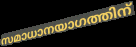
സമാധാനയാഗത്തിന്